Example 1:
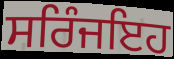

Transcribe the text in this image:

ਸਰਿੰਜਇਹ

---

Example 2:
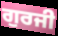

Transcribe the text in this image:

ਗੁਰਜੀ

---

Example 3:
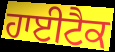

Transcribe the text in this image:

ਹਾਈਟੈਕ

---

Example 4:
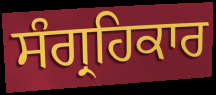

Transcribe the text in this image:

ਸੰਗ੍ਰਹਿਕਾਰ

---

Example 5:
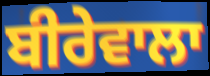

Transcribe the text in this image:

ਬੀਰੇਵਾਲਾ